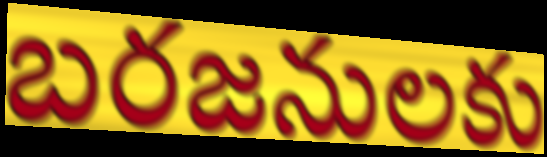
బరజనులకు